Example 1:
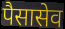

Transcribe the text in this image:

पैसासेव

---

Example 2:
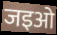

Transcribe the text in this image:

जइओ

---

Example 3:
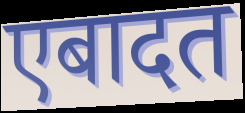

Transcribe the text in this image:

एबादत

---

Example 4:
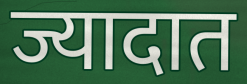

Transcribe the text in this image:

ज्यादात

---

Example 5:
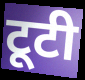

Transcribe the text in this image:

टूटी